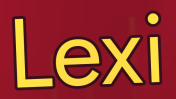
Lexi